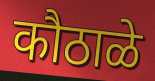
कौठाळे